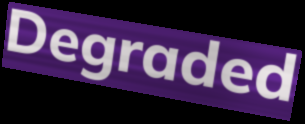
Degraded